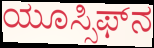
ಯೂಸ್ಸಿಫ್‌ನ